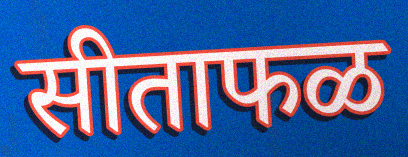
सीताफळ